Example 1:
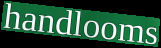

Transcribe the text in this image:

handlooms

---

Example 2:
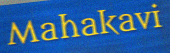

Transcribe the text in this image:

Mahakavi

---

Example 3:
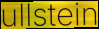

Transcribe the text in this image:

ullstein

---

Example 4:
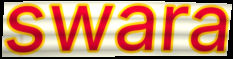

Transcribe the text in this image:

swara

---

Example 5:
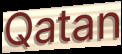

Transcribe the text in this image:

Qatan